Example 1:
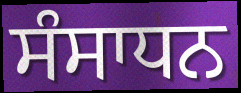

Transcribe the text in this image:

ਸੰਸਾਧਨ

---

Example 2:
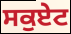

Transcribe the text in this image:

ਸਕੁਏਟ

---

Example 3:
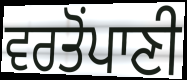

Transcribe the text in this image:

ਵਰਤੋਂਪਾਣੀ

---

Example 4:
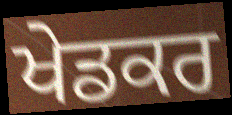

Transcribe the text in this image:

ਖੇਡਕਰ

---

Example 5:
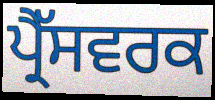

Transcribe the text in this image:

ਪ੍ਰੈੱਸਵਰਕ